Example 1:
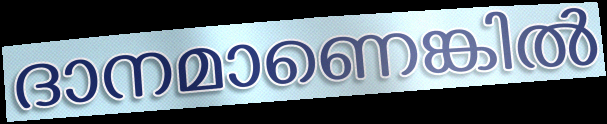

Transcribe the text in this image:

ദാനമാണെങ്കിൽ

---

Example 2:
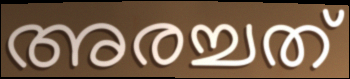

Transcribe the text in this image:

അരച്ചത്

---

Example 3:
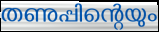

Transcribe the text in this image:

തണുപ്പിന്റെയും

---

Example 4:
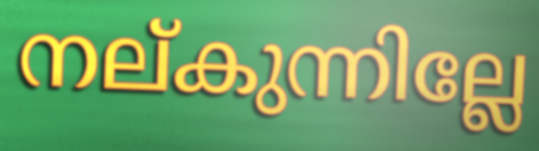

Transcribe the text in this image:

നല്കുന്നില്ലേ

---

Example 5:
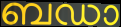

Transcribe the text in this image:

ബഡാ